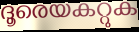
ദൂരെയകറ്റുക